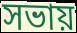
সভায়